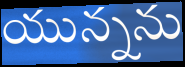
యున్నను